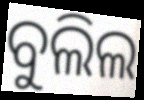
ବୁଲିଲ